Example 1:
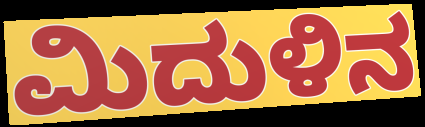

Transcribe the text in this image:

ಮಿದುಳಿನ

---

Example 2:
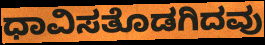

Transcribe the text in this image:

ಧಾವಿಸತೊಡಗಿದವು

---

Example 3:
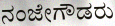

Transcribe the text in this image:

ನಂಜೇಗೌಡರು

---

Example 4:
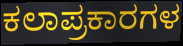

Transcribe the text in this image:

ಕಲಾಪ್ರಕಾರಗಳ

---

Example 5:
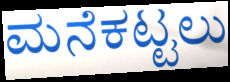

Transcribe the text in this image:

ಮನೆಕಟ್ಟಲು